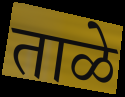
ताळे